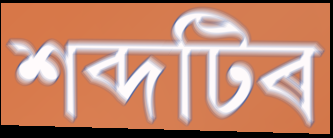
শব্দটিৰ